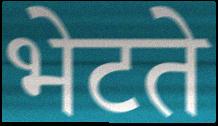
भेटते